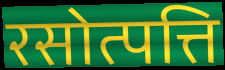
रसोत्पत्ति